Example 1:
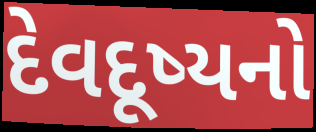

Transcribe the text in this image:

દેવદૂષ્યનો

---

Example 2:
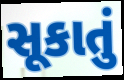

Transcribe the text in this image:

સૂકાતું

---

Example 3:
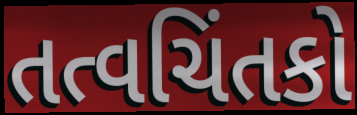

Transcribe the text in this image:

તત્વચિંતકો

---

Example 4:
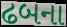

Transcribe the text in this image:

ઢબના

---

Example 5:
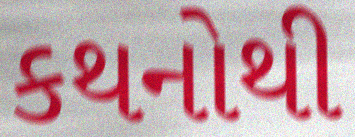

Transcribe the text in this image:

કથનોથી